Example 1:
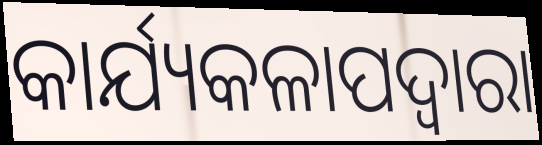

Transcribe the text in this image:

କାର୍ଯ୍ୟକଳାପଦ୍ବାରା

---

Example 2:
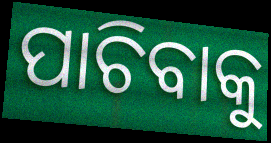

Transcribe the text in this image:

ପାଚିବାକୁ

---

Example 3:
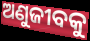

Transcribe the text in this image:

ଅଣୁଜୀବକୁ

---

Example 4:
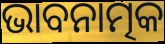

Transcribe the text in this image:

ଭାବନାତ୍ମକ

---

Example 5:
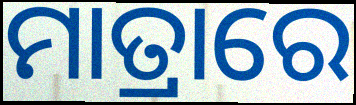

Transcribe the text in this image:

ମାତ୍ରାରେ